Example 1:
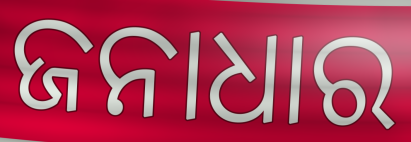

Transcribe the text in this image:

ଜନାଧାର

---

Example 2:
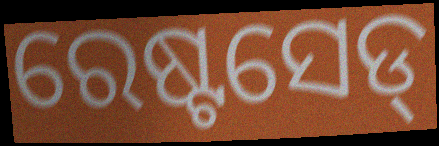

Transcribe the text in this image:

ରେଷ୍ଟସେଡ୍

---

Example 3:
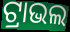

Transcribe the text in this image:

ଟ୍ରାଭଲ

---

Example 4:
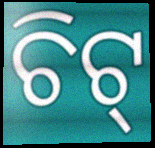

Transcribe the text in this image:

ଚିଟ୍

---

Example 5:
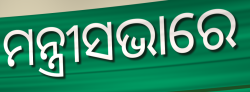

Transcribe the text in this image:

ମନ୍ତ୍ରୀସଭାରେ